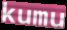
kumu